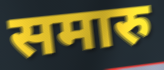
समारु